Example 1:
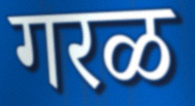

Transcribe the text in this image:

गरळ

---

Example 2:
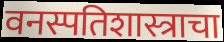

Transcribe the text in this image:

वनस्पतिशास्त्राचा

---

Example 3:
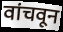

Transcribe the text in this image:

वांचवून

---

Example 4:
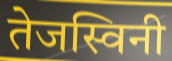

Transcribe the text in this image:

तेजस्विनी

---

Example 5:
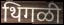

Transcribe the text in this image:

थिगळी